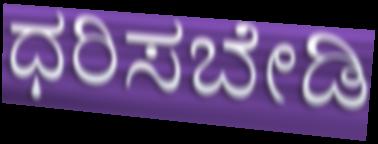
ಧರಿಸಬೇಡಿ